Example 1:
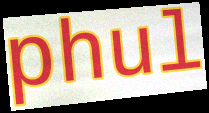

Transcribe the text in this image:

phul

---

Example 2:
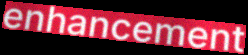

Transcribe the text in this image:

enhancement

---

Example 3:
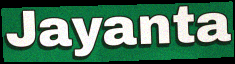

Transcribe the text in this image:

Jayanta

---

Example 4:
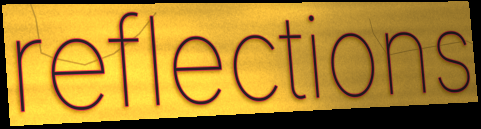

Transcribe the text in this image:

reflections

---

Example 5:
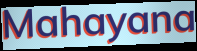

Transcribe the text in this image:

Mahayana